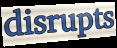
disrupts